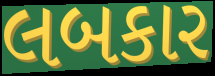
લબકાર